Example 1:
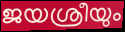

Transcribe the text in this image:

ജയശ്രീയും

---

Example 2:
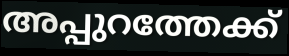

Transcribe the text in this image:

അപ്പുറത്തേക്ക്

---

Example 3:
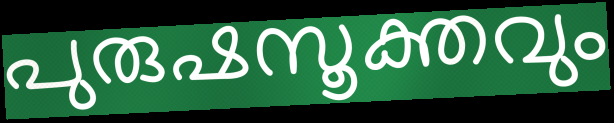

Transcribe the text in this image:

പുരുഷസൂക്തവും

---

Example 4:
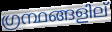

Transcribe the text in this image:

ഗ്രന്ഥങ്ങളില്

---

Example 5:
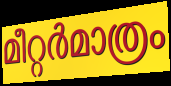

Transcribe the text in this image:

മീറ്റർമാത്രം